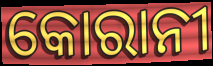
କୋରାନୀ